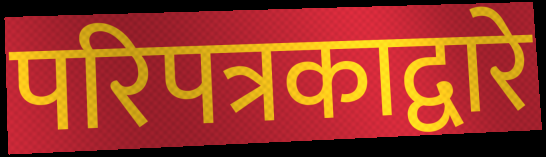
परिपत्रकाद्वारे